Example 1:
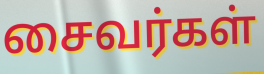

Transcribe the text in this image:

சைவர்கள்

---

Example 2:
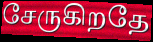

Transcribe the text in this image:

சேருகிறதே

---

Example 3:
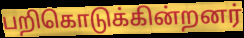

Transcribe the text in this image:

பறிகொடுக்கின்றனர்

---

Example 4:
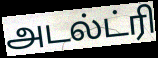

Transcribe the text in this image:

அடல்ட்ரி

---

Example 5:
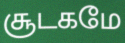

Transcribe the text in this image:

சூடகமே